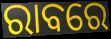
ରାବରେ